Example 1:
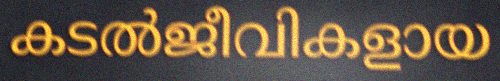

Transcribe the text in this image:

കടൽജീവികളായ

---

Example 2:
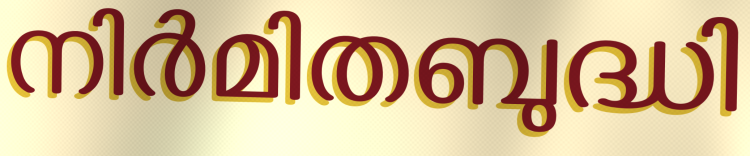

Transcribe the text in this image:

നിർമിതബുദ്ധി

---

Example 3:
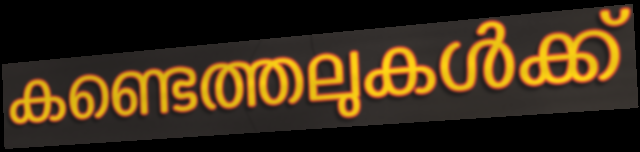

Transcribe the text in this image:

കണ്ടെത്തലുകൾക്ക്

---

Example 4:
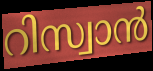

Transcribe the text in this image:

റിസ്വാൻ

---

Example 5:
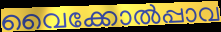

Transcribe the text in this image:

വൈക്കോൽപ്പാവ